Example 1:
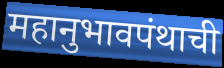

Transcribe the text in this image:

महानुभावपंथाची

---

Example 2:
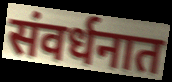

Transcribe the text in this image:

संवर्धनात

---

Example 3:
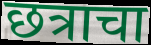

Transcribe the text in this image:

छत्राचा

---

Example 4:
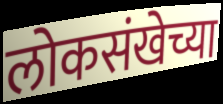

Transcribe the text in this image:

लोकसंखेच्या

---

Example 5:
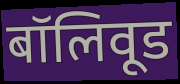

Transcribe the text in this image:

बॉलिवूड